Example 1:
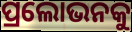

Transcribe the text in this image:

ପ୍ରଲୋଭନକୁ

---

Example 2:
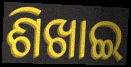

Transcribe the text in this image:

ଶିଖାଇ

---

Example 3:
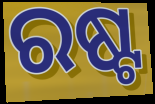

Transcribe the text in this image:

ରଷ୍ଟ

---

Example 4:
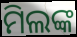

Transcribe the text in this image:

ମିଲଙ୍କ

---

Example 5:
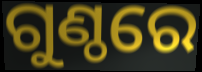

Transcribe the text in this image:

ଗୁଣ୍ଠରେ